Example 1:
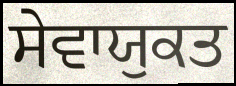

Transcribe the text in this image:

ਸੇਵਾਯੁਕਤ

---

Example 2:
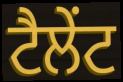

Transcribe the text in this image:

ਟੈਲੇੰਟ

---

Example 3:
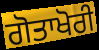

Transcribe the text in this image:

ਗੋਤਾਖੋਰੀ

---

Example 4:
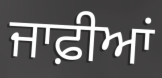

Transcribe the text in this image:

ਜਾਫ਼ੀਆਂ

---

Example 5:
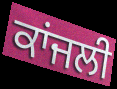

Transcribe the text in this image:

ਕਾਂਜਲੀ